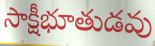
సాక్షీభూతుడవు